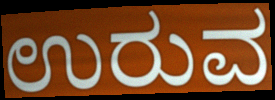
ಉರುವ